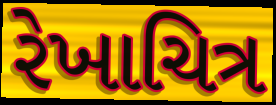
રેખાચિત્ર